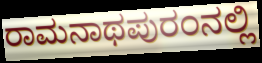
ರಾಮನಾಥಪುರಂನಲ್ಲಿ